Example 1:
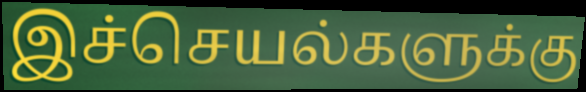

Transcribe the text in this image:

இச்செயல்களுக்கு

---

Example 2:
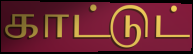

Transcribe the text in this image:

காட்டுட்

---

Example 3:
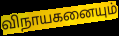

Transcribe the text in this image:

விநாயகனையும்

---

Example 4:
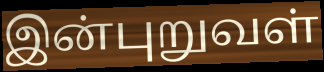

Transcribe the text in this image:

இன்புறுவள்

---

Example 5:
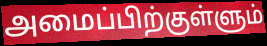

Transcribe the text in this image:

அமைப்பிற்குள்ளும்